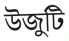
উজুটি